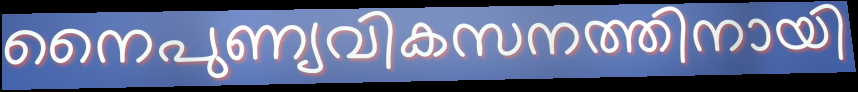
നൈപുണ്യവികസനത്തിനായി